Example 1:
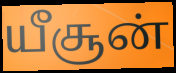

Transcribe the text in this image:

யீசூன்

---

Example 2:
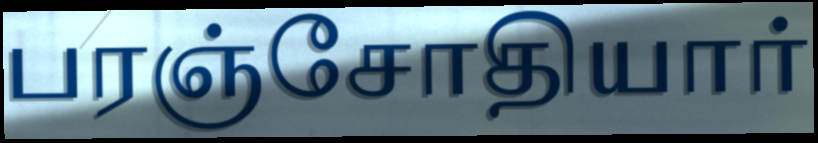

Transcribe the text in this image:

பரஞ்சோதியார்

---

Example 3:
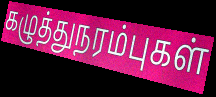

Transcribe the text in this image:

கழுத்துநரம்புகள்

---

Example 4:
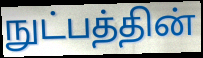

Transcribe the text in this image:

நுட்பத்தின்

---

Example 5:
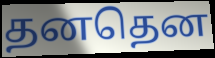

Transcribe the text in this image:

தனதென